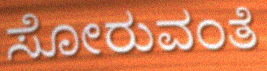
ಸೋರುವಂತೆ